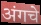
अंगचे